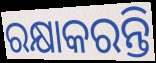
ରକ୍ଷାକରନ୍ତି